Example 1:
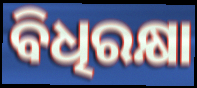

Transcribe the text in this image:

ବିଧିରକ୍ଷା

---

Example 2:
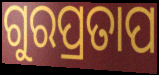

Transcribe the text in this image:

ଗୁରପ୍ରତାପ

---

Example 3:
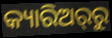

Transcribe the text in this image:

କ୍ୟାରିଅର୍‌ରୁ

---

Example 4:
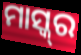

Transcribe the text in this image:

ମାସ୍କ୍‌ର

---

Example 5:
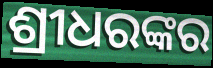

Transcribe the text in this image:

ଶ୍ରୀଧରଙ୍କର